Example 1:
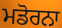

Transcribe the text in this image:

ਮਡੋਰਨਾ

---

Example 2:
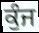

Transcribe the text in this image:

ਕੁੰਜ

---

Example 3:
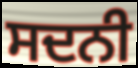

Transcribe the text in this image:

ਸਦਨੀ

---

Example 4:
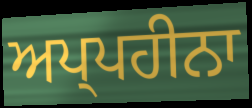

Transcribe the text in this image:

ਅਪ੍ਪਹੀਨਾ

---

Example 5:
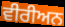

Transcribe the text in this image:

ਵੀਰੀਅਨ